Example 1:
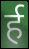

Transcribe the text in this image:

र्ह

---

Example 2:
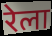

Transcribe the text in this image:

रेला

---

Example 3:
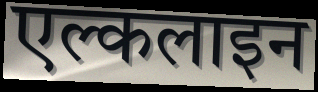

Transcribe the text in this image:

एल्कलाइन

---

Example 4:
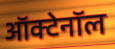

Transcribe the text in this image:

ऑक्टेनॉल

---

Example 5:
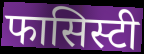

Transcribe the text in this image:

फासिस्टी